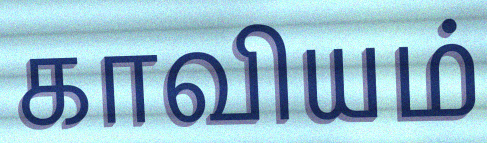
காவியம்